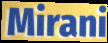
Mirani